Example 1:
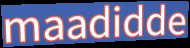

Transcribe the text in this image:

maadidde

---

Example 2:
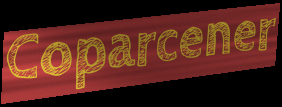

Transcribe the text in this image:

Coparcener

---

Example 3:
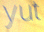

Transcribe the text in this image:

yut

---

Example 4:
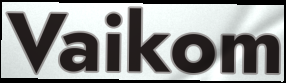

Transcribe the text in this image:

Vaikom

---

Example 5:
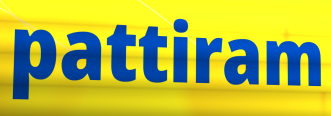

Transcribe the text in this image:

pattiram